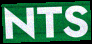
NTS